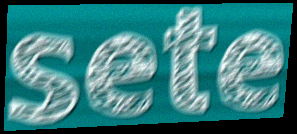
sete